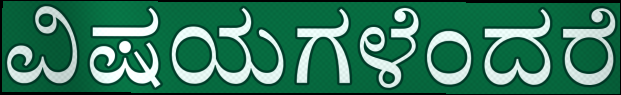
ವಿಷಯಗಳೆಂದರೆ